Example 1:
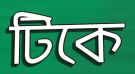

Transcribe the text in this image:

টিকে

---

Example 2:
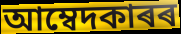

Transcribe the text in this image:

আম্বেদকাৰৰ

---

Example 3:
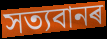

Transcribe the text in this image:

সত্যবানৰ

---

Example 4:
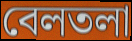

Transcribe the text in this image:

বেলতলা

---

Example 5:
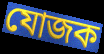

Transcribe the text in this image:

যোজক